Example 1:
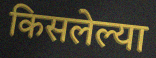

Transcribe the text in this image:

किसलेल्या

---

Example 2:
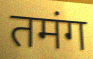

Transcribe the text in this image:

तमंग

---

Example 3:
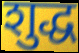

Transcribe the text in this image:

शुद्ध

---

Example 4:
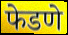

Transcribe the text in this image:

फेडणे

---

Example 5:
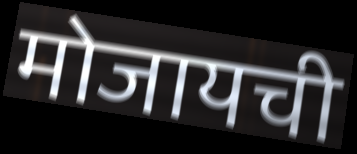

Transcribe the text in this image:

मोजायची